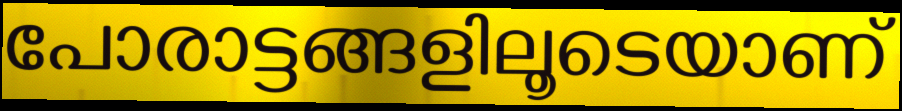
പോരാട്ടങ്ങളിലൂടെയാണ്